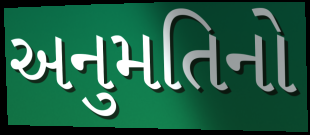
અનુમતિનો